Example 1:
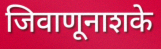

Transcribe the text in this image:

जिवाणूनाशके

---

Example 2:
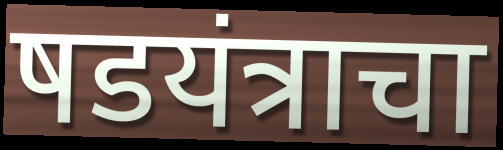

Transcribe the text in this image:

षडयंत्राचा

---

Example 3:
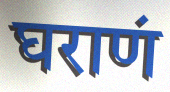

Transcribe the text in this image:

घराणं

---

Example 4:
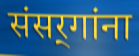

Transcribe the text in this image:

संसर्गांना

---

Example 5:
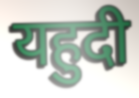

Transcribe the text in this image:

यहुदी